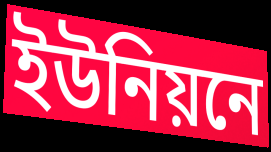
ইউনিয়নে